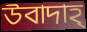
উবাদাহ্